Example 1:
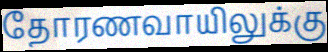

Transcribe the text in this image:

தோரணவாயிலுக்கு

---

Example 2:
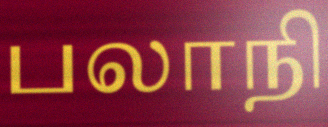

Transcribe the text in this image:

பலாநி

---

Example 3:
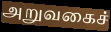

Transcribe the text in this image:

அறுவகைச்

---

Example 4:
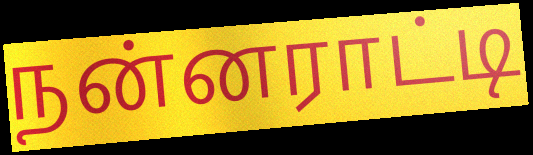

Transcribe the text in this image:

நன்னராட்டி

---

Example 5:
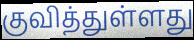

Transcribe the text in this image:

குவித்துள்ளது